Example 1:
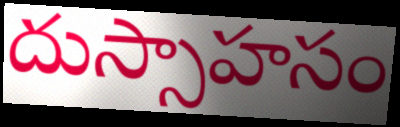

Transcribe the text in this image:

దుస్సాహసం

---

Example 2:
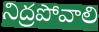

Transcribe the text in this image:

నిద్రపోవాలి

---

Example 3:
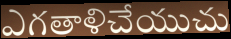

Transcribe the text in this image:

ఎగతాళిచేయుచు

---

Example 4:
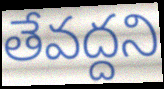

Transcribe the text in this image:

తేవద్దని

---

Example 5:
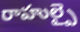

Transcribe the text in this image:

రాహుల్పై